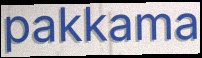
pakkama